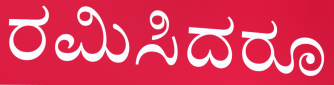
ರಮಿಸಿದರೂ